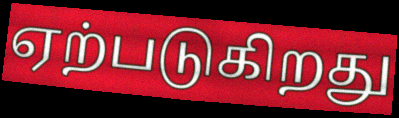
ஏற்படுகிறது